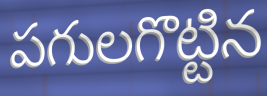
పగులగొట్టిన